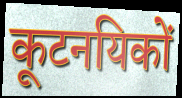
कूटनयिकों